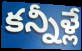
కన్నీళ్లే